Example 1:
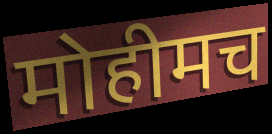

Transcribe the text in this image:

मोहीमच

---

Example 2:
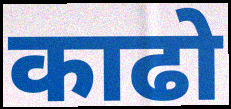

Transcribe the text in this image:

काढो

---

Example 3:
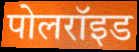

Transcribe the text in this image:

पोलरॉइड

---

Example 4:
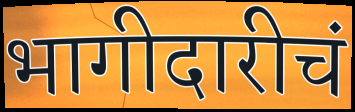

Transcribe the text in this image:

भागीदारीचं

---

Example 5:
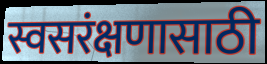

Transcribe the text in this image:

स्वसरंक्षणासाठी